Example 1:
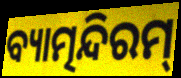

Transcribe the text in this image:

ବ୍ୟାତ୍ମନ୍ଦିରମ୍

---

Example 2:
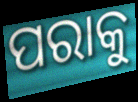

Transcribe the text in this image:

ପରାକୁ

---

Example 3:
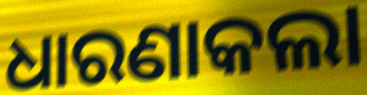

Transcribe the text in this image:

ଧାରଣାକଲା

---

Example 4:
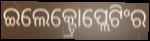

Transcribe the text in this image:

ଇଲେକ୍ଟ୍ରୋପ୍ଲେଟିଂର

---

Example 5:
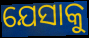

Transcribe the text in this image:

ଯେସାକୁ